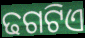
ଢଗଟିଏ